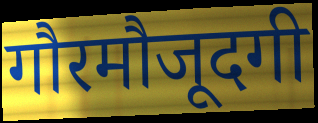
गौरमौजूदगी